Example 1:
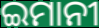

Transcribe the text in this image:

ଇମାନୀ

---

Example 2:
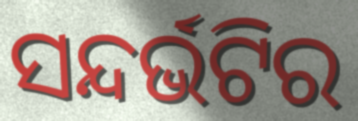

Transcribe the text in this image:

ସନ୍ଦର୍ଭଟିର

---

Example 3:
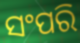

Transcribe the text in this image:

ସଂପରି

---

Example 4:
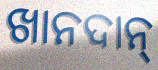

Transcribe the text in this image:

ଖାନଦାନ୍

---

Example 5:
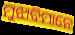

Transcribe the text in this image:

ମୁଝାବିମାନେ